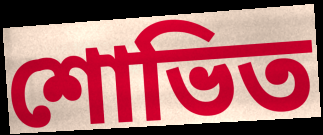
শোভিত